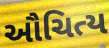
ઔચિત્ય